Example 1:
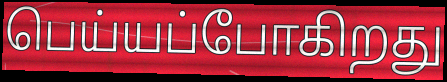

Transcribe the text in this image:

பெய்யப்போகிறது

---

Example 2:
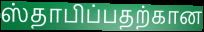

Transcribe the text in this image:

ஸ்தாபிப்பதற்கான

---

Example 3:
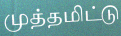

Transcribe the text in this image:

முத்தமிட்டு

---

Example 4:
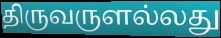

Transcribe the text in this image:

திருவருளல்லது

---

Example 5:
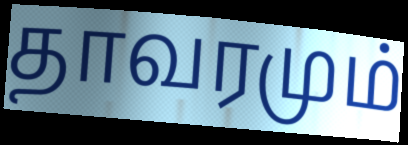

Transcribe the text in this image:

தாவரமும்